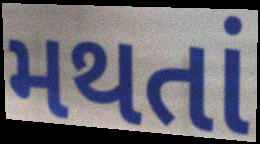
મથતાં